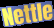
Nettle